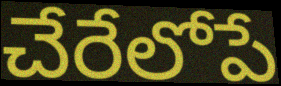
చేరేలోపే